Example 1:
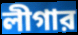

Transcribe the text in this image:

লীগার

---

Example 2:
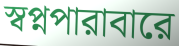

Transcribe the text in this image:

স্বপ্নপারাবারে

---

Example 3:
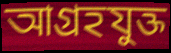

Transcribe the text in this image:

আগ্রহযুক্ত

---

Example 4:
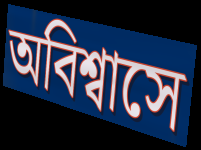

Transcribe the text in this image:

অবিশ্বাসে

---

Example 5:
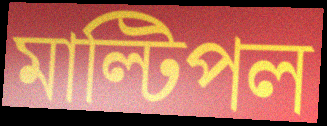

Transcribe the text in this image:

মাল্টিপল